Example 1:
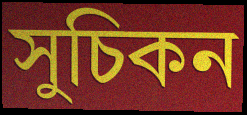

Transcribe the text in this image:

সুচিকন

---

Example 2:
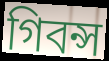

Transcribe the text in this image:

গিবন্স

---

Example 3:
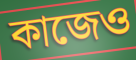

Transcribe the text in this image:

কাজেও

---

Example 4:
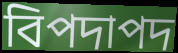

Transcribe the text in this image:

বিপদাপদ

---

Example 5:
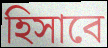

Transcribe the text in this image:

হিসাবে